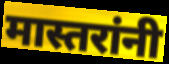
मास्तरांनी